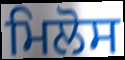
ਮਿਲੋਸ